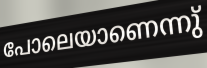
പോലെയാണെന്നു്